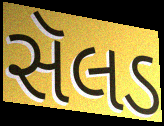
સૅલડ